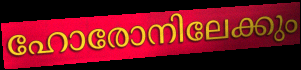
ഹോരോനിലേക്കും